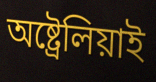
অষ্ট্ৰেলিয়াই